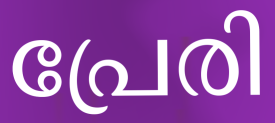
പ്രേരി